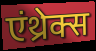
एंथ्रेक्स